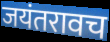
जयंतरावच